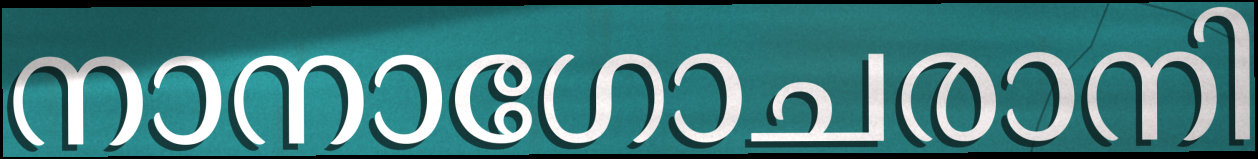
നാനാഗോചരാനി